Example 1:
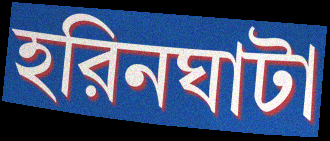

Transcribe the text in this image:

হরিনঘাটা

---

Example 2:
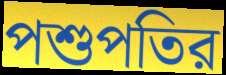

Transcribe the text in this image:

পশুপতির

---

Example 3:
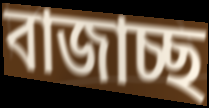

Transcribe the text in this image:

বাজাচ্ছ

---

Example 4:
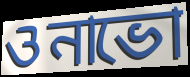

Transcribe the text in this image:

ওনাভো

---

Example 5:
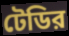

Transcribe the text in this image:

টেডির